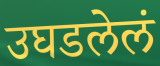
उघडलेलं